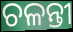
ଚଳନ୍ତୀ